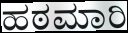
ಹಠಮಾರಿ